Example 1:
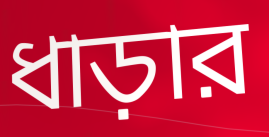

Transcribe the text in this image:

ধাড়ার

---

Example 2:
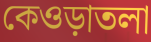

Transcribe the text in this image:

কেওড়াতলা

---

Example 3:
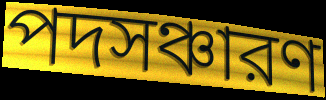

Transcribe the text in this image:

পদসঞ্চারণ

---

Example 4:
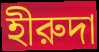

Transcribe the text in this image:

হীরুদা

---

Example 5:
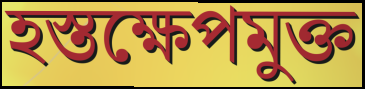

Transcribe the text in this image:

হস্তক্ষেপমুক্ত